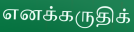
எனக்கருதிக்